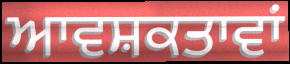
ਆਵਸ਼ਕਤਾਵਾਂ